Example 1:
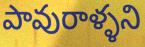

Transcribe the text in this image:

పావురాళ్ళని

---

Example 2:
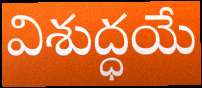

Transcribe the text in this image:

విశుద్ధయే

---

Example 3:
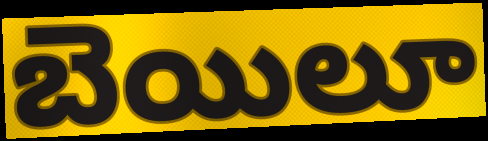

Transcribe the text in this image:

బెయిలూ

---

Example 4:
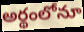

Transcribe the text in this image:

అర్థంలోనూ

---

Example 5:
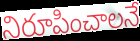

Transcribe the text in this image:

నిరూపించాలనే